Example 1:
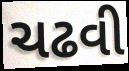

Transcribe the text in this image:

ચઢવી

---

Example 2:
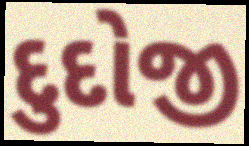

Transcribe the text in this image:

દુદોજી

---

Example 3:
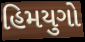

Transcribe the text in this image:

હિમયુગો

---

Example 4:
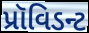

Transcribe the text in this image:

પ્રૉવિડન્ટ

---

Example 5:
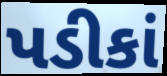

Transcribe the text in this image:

પડીકાં